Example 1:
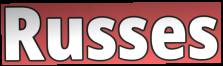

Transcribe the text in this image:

Russes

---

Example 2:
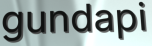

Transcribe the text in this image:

gundapi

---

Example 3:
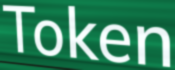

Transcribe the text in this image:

Token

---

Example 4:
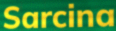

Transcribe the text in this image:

Sarcina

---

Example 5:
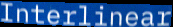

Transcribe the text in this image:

Interlinear